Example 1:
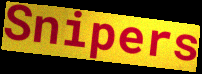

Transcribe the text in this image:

Snipers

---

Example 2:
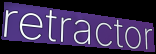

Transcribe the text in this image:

retractor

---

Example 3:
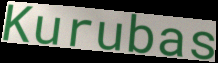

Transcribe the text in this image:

Kurubas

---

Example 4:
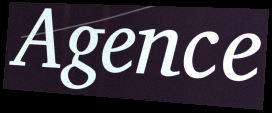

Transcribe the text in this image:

Agence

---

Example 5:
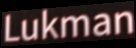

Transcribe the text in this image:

Lukman